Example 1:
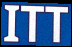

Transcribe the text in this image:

ITT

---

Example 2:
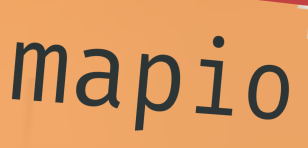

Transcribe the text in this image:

mapio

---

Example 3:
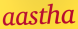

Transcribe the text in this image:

aastha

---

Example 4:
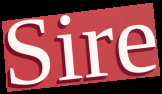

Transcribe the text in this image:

Sire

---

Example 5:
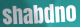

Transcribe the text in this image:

shabdno